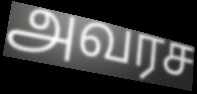
அவரச